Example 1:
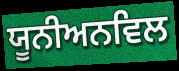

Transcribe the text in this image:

ਯੂਨੀਅਨਵਿਲ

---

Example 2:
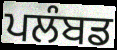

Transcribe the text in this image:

ਪਲੰਬਡ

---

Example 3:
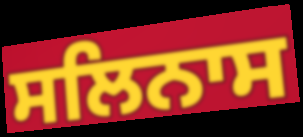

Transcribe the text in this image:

ਸਲਿਨਾਸ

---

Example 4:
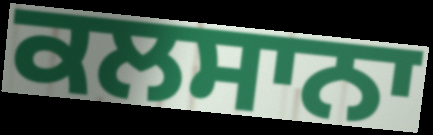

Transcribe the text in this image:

ਕਲਸਾਨਾ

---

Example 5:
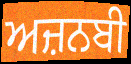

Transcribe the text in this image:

ਅਜ਼ਨਬੀ